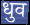
धुव